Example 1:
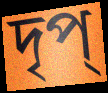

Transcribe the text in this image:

দৃপ্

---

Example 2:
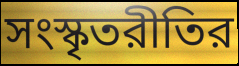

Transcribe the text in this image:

সংস্কৃতরীতির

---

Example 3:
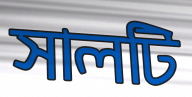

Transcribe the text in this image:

সালটি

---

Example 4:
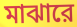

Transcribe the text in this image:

মাঝারে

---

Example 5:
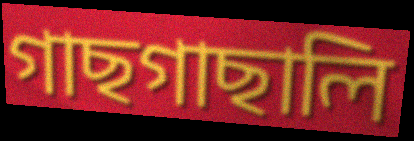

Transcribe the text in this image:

গাছগাছালি